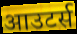
आउटर्स